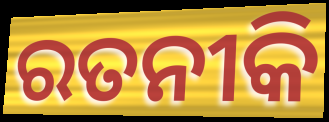
ରତନୀକି